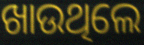
ଖାଉଥିଲେ